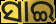
ସାଇ